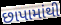
છાપામાંથી